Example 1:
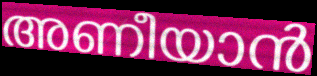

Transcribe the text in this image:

അണീയാൻ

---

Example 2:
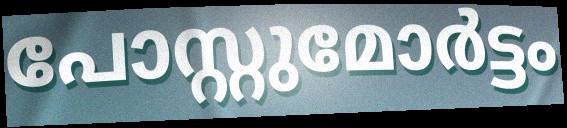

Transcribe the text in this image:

പോസ്റ്റുമോർട്ടം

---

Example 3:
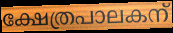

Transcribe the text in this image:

ക്ഷേത്രപാലകന്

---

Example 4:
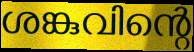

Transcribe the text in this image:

ശങ്കുവിന്റെ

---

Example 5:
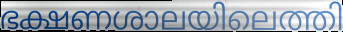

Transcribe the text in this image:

ഭക്ഷണശാലയിലെത്തി